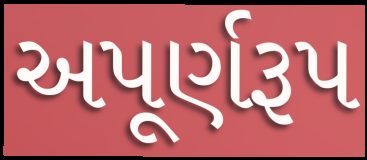
અપૂર્ણરૂપ